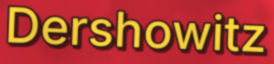
Dershowitz